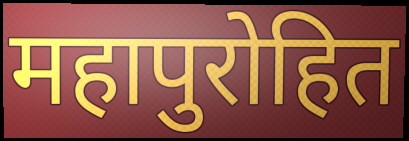
महापुरोहित